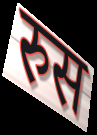
रुस